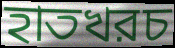
হাতখরচ